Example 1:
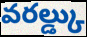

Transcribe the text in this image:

వరల్డ్కు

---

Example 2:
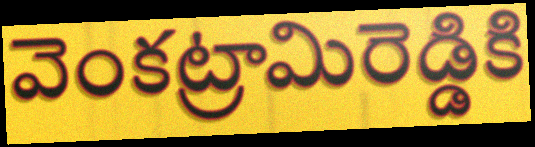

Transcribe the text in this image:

వెంకట్రామిరెడ్డికి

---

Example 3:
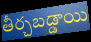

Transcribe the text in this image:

తీర్చబడ్డాయి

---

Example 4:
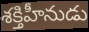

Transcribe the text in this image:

శక్తిహీనుడు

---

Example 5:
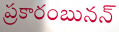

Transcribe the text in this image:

ప్రకారంబునన్